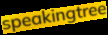
speakingtree